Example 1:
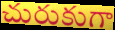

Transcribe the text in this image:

చురుకుగా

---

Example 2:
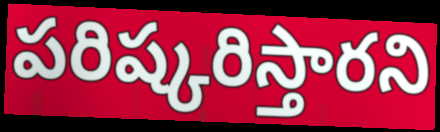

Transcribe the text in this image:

పరిష్కరిస్తారని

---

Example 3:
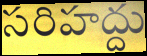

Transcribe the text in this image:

సరిహద్దు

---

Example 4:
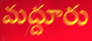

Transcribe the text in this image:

మద్దూరు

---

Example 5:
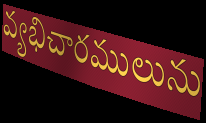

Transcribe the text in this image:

వ్యభిచారములును